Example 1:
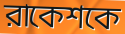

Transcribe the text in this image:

রাকেশকে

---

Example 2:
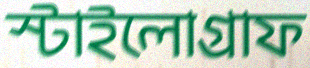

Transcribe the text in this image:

স্টাইলোগ্রাফ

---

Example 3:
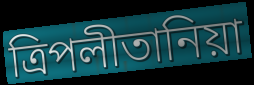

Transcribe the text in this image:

ত্রিপলীতানিয়া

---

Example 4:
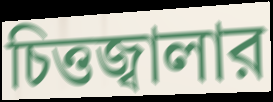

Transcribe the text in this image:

চিত্তজ্বালার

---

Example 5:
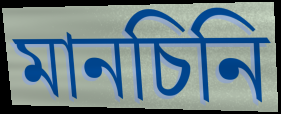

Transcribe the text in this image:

মানচিনি